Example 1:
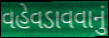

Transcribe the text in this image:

વહેવડાવવાનું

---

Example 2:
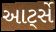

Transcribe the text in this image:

આર્ટ્સે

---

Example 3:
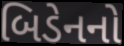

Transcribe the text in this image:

બિડેનનો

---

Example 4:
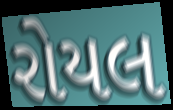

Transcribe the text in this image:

રોયલ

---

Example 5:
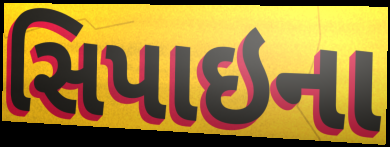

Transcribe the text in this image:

સિપાઇના